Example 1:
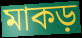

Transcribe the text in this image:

মাকড়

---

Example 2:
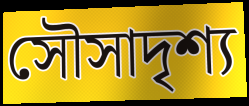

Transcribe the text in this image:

সৌসাদৃশ্য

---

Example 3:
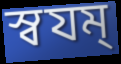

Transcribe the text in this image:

স্বযম্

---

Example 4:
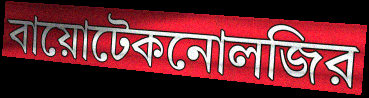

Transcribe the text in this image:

বায়োটেকনোলজির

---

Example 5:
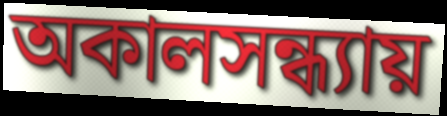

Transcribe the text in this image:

অকালসন্ধ্যায়